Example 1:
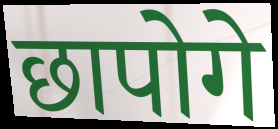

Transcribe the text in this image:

छापोगे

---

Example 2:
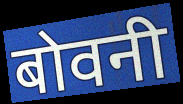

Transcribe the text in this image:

बोवनी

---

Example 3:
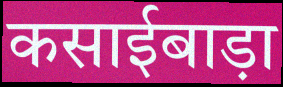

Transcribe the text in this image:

कसाईबाड़ा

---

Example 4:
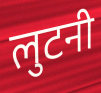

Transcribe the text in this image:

लुटनी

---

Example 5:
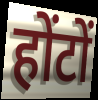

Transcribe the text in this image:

होंटों